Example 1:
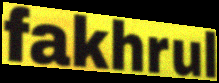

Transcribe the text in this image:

fakhrul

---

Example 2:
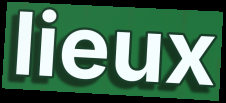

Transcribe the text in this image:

lieux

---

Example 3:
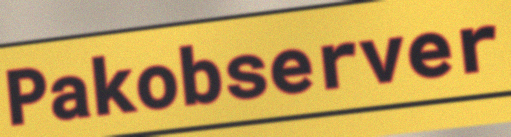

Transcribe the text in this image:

Pakobserver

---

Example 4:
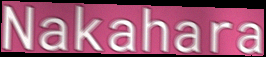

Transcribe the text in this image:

Nakahara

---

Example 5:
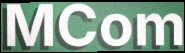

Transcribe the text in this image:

MCom